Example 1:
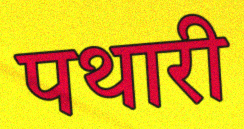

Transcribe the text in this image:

पथारी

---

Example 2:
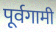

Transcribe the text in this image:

पूर्वगामी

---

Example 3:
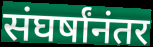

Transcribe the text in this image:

संघर्षांनंतर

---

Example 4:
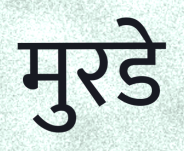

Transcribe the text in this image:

मुरडे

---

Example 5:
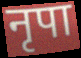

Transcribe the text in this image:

नृपा